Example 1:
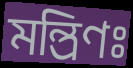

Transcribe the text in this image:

মন্ত্রিণঃ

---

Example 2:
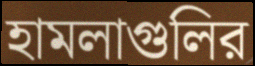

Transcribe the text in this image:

হামলাগুলির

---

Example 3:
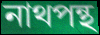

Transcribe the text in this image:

নাথপন্থ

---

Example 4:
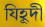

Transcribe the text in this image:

যিহূদী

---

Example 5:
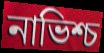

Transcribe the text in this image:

নাভিশ্চ